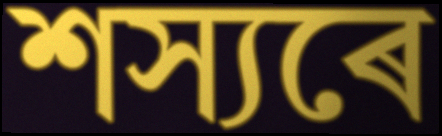
শস্যৰে